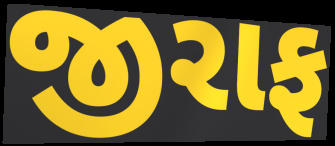
જીરાફ